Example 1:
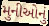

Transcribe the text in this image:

મુનીઓનું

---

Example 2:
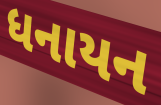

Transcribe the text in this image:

ધનાયન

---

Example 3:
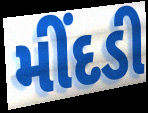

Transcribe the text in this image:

મીંદડી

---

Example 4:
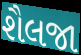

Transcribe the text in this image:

શૈલજા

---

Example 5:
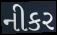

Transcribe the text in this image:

નીકર